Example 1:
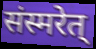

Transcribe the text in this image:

संस्मरेत्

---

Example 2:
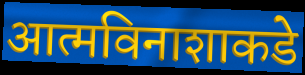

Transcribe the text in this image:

आत्मविनाशाकडे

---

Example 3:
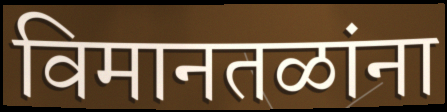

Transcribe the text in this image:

विमानतळांना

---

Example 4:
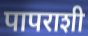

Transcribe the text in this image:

पापराशी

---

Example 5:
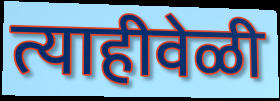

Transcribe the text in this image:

त्याहीवेळी